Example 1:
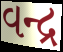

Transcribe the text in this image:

વન્દ્ર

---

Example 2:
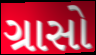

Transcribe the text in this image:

ગ્રાસો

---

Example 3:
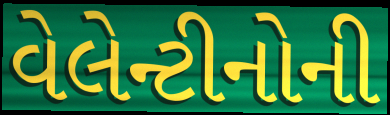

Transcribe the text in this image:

વેલેન્ટીનોની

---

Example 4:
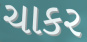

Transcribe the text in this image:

ચાકર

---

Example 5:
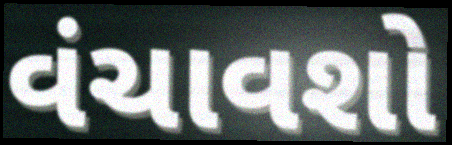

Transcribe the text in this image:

વંચાવશો